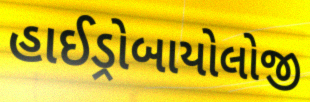
હાઈડ્રોબાયોલોજી